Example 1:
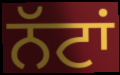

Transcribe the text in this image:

ਨੱਟਾਂ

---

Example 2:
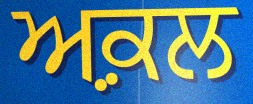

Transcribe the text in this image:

ਅ਼ਕ਼ਲ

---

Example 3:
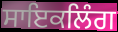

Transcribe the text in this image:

ਸਾਇਕਲਿੰਗ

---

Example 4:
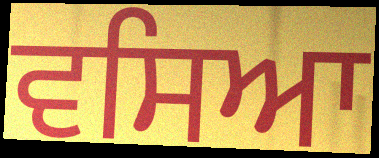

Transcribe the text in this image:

ਵਸਿਆ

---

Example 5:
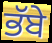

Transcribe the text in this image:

ਭੱਬੇ